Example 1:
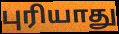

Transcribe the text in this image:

புரியாது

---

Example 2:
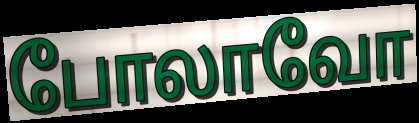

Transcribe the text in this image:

போலாவோ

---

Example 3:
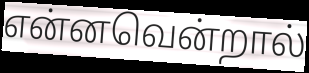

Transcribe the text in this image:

என்னவென்றால்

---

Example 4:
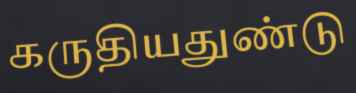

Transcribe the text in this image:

கருதியதுண்டு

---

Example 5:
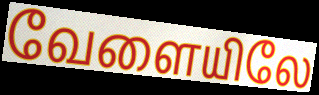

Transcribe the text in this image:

வேளையிலே